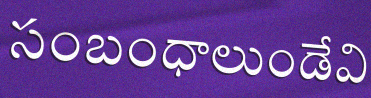
సంబంధాలుండేవి